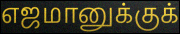
எஜமானுக்குக்